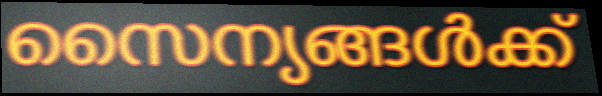
സൈന്യങ്ങൾക്ക്